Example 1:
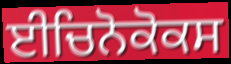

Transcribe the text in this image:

ਈਚਿਨੋਕੋਕਸ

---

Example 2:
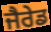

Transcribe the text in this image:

ਜੈਰੇਡ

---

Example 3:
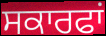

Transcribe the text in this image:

ਸਕਾਰਫਾਂ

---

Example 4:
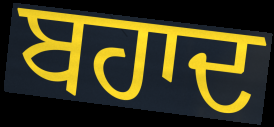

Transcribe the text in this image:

ਬਹਾਦ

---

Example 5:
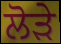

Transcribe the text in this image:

ਲੋੜੇ